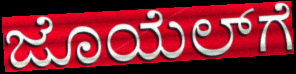
ಜೊಯೆಲ್‌ಗೆ